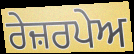
ਰੇਜ਼ਰਪੇਅ